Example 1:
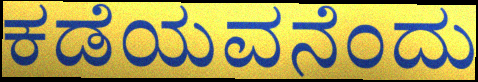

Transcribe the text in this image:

ಕಡೆಯವನೆಂದು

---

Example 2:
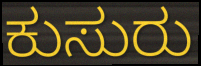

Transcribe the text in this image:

ಕುಸುರು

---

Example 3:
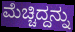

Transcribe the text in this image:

ಮೆಚ್ಚಿದ್ದನ್ನು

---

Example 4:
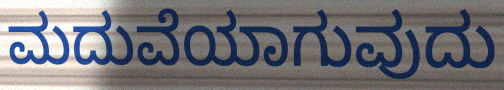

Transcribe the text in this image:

ಮದುವೆಯಾಗುವುದು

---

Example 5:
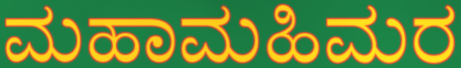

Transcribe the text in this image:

ಮಹಾಮಹಿಮರ